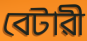
বেটাৱী